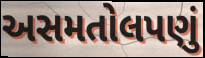
અસમતોલપણું